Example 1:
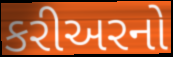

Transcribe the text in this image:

કરીઅરનો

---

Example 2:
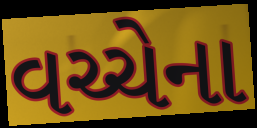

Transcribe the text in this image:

વચ્ચેના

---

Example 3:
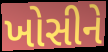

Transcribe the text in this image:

ખોસીને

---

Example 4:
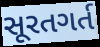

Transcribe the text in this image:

સૂરતગર્ત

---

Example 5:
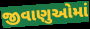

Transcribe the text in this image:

જીવાણુઓમાં